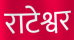
राटेश्वर